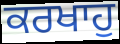
ਕਰਖਾਹੁ